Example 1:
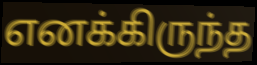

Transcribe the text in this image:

எனக்கிருந்த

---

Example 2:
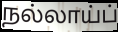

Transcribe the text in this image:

நல்லாய்ப்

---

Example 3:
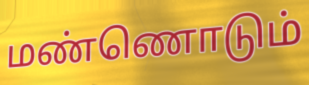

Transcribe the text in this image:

மண்ணொடும்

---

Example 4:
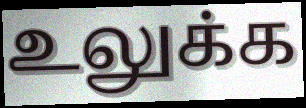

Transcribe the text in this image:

உலுக்க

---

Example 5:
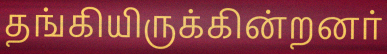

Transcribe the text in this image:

தங்கியிருக்கின்றனர்